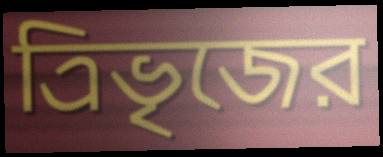
ত্রিভৃজের